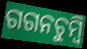
ଗଗନଚୁମ୍ବି